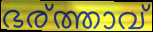
ഭര്ത്താവ്